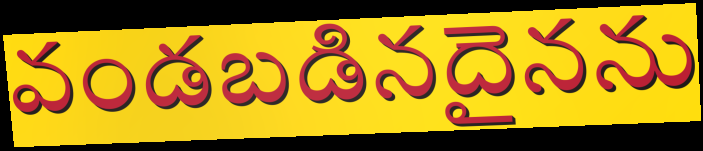
వండబడినదైనను